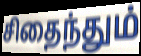
சிதைந்தும்